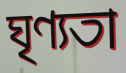
ঘৃণ্যতা